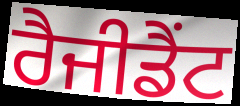
ਰੈਜੀਡੈਂਟ